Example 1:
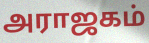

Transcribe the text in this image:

அராஜகம்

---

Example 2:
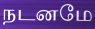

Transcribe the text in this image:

நடனமே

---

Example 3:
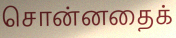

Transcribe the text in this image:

சொன்னதைக்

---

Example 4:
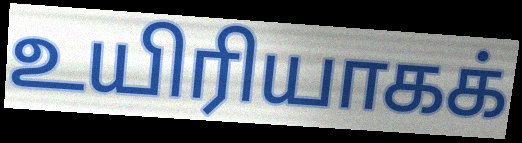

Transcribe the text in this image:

உயிரியாகக்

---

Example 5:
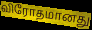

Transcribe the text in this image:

விரோதமானது